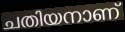
ചതിയനാണ്